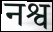
नश्व